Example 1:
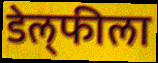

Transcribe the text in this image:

डेल्फीला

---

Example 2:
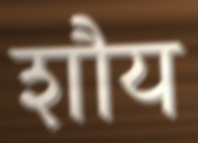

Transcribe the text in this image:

शौय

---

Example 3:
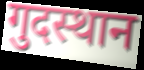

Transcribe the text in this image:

गुदस्थान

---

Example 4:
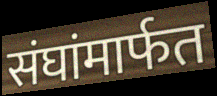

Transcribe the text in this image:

संघांमार्फत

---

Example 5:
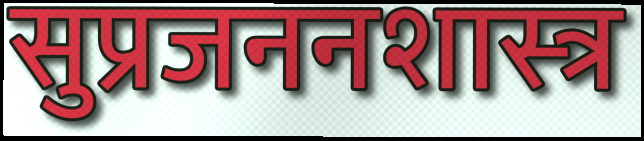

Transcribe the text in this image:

सुप्रजननशास्त्र